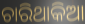
ଚାରିଥାକିଆ